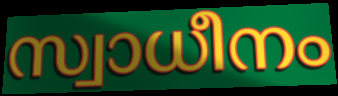
സ്വാധീനം